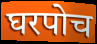
घरपोच